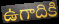
ఉగాదికి